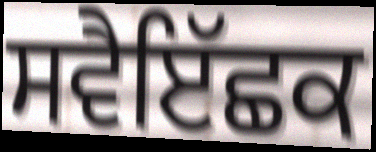
ਸਵੈਇੱਛਕ